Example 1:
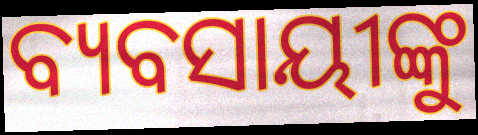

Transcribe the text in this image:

ବ୍ୟବସାୟୀଙ୍କୁ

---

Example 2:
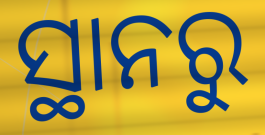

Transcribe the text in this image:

ସ୍ଥାନରୁ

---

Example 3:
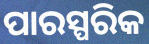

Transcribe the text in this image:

ପାରସ୍ପରିକ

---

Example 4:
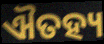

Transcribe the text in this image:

ଐତହ୍ୟ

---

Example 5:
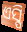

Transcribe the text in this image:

ଏସ୍ପି